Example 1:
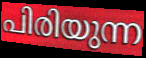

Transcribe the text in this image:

പിരിയുന്ന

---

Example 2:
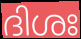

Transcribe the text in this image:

ദിശഃ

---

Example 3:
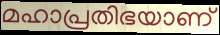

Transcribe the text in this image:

മഹാപ്രതിഭയാണ്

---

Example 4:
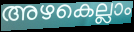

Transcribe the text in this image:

അഴകെല്ലാം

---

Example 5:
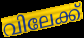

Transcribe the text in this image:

വിലേക്ക്